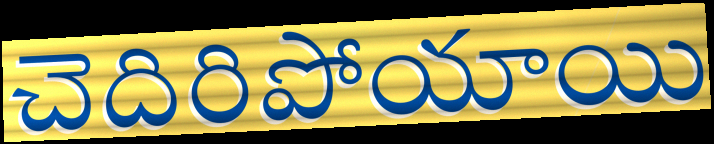
చెదిరిపోయాయి